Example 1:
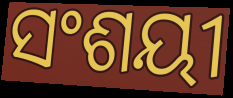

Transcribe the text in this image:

ସଂଶୟୀ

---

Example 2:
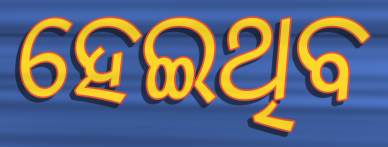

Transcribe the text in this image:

ହେଇଥିବ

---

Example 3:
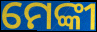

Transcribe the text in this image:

ମେଙ୍କୀ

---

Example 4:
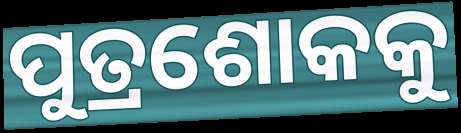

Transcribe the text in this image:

ପୁତ୍ରଶୋକକୁ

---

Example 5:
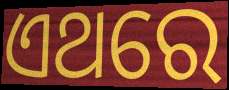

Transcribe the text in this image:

ଏଥରେ